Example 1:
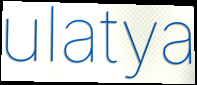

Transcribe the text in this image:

ulatya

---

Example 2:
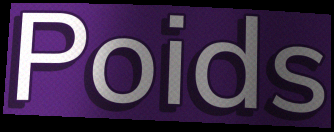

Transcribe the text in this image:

Poids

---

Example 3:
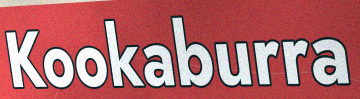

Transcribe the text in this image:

Kookaburra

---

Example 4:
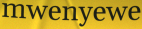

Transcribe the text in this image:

mwenyewe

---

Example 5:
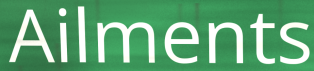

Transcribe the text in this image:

Ailments